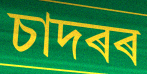
চাদৰৰ